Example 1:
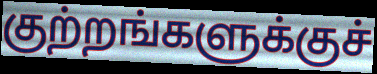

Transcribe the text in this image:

குற்றங்களுக்குச்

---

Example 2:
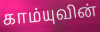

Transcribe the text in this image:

காம்யுவின்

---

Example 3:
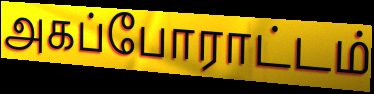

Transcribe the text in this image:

அகப்போராட்டம்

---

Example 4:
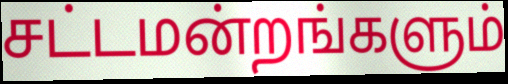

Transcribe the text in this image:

சட்டமன்றங்களும்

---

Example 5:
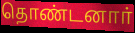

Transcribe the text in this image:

தொண்டனார்